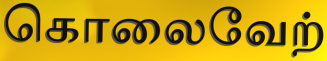
கொலைவேற்